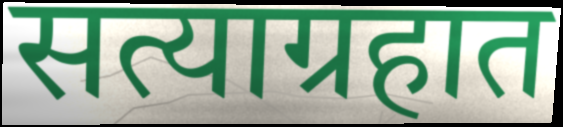
सत्याग्रहात